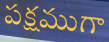
పక్షముగా